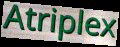
Atriplex